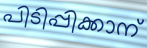
പിടിപ്പിക്കാന്